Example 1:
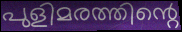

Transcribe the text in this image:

പുളിമരത്തിന്റെ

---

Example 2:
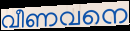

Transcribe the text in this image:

വീണവനെ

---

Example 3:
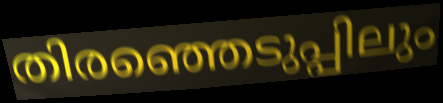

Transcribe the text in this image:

തിരഞ്ഞെടുപ്പിലും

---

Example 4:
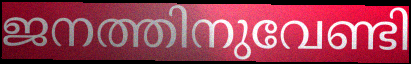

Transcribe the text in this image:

ജനത്തിനുവേണ്ടി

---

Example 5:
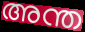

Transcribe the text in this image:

അന്ത